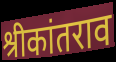
श्रीकांतराव